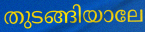
തുടങ്ങിയാലേ